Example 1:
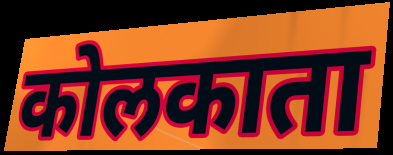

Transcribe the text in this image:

कोलकाता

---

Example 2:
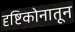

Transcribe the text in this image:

दृष्टिकोनातून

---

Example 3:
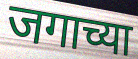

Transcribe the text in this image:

जगाच्या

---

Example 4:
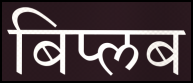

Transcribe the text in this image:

बिप्लब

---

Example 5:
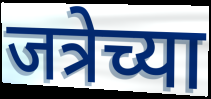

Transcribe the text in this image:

जत्रेच्या